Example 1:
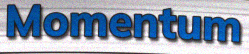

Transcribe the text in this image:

Momentum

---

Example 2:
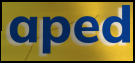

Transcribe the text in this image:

aped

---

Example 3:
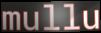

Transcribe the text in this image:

mullu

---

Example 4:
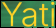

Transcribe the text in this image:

Yati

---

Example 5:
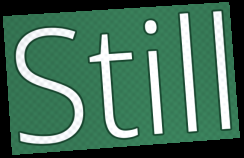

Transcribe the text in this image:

Still